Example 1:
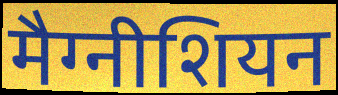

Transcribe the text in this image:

मैग्नीशियन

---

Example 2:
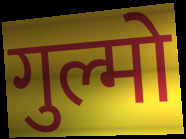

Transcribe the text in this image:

गुल्मो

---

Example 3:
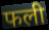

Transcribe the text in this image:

फली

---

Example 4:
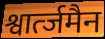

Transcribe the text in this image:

श्वार्त्जमैन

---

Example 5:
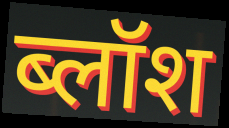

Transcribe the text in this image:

ब्लॉश